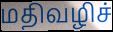
மதிவழிச்